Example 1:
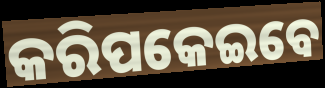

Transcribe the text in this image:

କରିପକେଇବେ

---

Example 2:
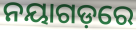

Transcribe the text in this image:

ନୟାଗଡ଼ରେ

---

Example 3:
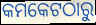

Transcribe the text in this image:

କମକେଟଠାରୁ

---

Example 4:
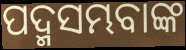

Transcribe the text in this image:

ପଦ୍ମସମ୍ଭବାଙ୍କ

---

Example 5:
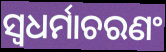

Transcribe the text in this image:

ସ୍ୱଧର୍ମାଚରଣଂ